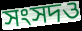
সংসদও